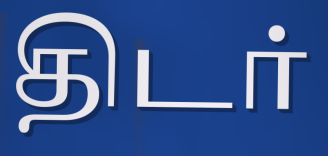
திடர்